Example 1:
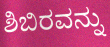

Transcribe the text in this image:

ಶಿಬಿರವನ್ನು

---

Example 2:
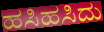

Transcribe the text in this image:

ಹಸಿಹಸಿದು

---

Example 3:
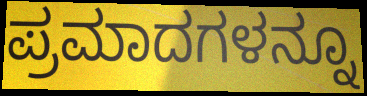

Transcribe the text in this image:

ಪ್ರಮಾದಗಳನ್ನೂ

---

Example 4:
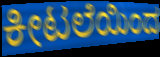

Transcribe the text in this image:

ಕೀಟಲೆಯಿಂದ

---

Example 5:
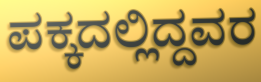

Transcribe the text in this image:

ಪಕ್ಕದಲ್ಲಿದ್ದವರ